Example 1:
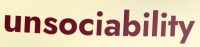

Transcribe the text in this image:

unsociability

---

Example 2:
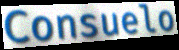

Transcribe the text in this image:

Consuelo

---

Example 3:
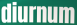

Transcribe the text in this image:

diurnum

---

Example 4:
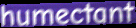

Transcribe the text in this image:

humectant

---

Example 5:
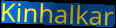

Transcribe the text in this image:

Kinhalkar